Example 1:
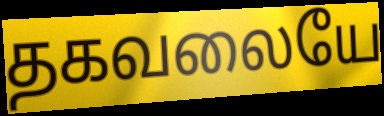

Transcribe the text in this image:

தகவலையே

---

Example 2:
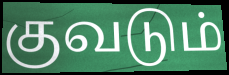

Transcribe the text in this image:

குவடும்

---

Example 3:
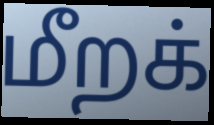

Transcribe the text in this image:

மீறக்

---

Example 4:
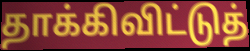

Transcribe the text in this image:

தாக்கிவிட்டுத்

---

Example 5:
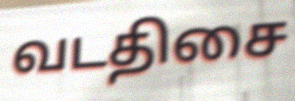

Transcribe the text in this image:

வடதிசை